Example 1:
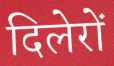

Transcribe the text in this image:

दिलेरों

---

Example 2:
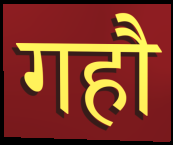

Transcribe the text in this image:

गहौ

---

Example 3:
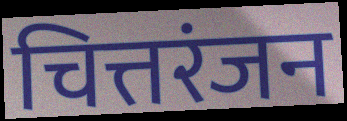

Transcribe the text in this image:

चित्तरंजन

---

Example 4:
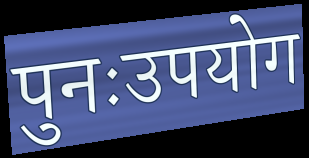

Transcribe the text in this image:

पुनःउपयोग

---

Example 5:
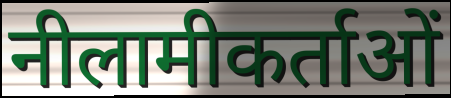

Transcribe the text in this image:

नीलामीकर्ताओं